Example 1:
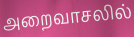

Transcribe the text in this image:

அறைவாசலில்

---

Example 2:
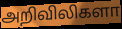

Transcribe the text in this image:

அறிவிலிகளா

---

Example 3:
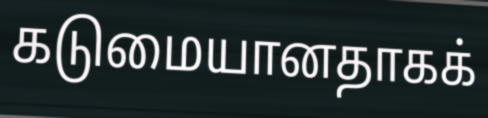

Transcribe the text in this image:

கடுமையானதாகக்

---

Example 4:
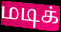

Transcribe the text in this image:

மடிக்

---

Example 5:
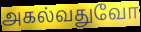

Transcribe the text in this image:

அகல்வதுவோ